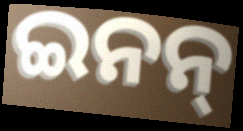
ଇନନ୍